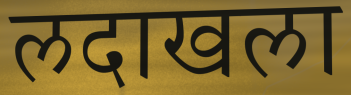
लदाखला